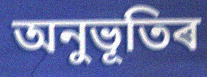
অনুভূতিৰ